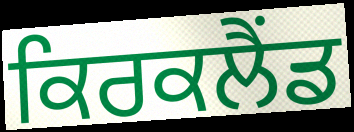
ਕਿਰਕਲੈਂਡ